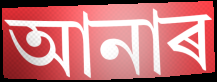
আনাৰ